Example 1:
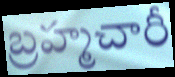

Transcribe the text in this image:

బ్రహ్మచారీ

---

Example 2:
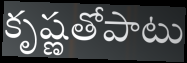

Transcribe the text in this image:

కృష్ణతోపాటు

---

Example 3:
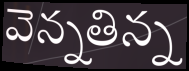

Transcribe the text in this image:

వెన్నతిన్న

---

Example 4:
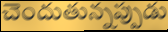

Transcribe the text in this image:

చెందుతున్నప్పుడు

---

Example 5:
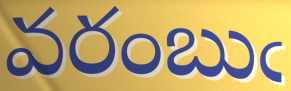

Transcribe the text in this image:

వరంబుఁ